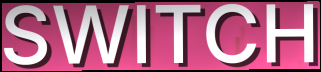
SWITCH